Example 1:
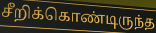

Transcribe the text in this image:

சீறிக்கொண்டிருந்த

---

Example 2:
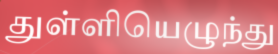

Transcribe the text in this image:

துள்ளியெழுந்து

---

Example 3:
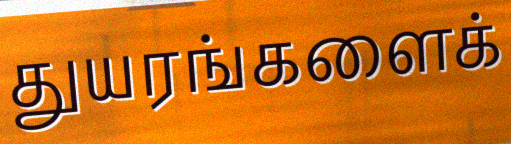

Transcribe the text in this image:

துயரங்களைக்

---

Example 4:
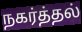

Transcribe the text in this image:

நகர்த்தல்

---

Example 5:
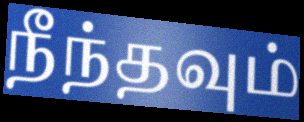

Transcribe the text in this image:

நீந்தவும்